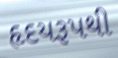
હૃદયરૂપથી